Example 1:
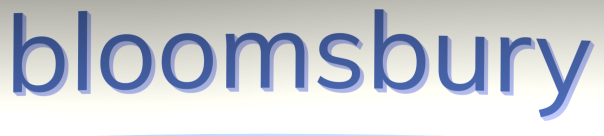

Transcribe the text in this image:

bloomsbury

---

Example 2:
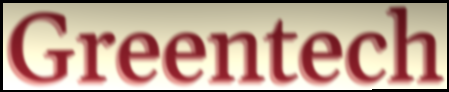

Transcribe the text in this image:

Greentech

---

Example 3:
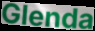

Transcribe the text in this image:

Glenda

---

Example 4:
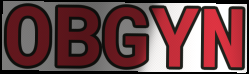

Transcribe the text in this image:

OBGYN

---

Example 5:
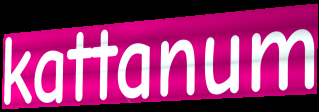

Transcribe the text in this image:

kattanum